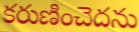
కరుణించెదను